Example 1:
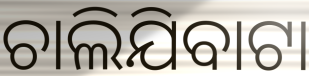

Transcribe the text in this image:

ଚାଲିଯିବାଟା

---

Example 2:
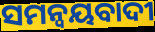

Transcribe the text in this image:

ସମନ୍ୱୟବାଦୀ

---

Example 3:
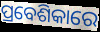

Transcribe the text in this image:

ପ୍ରବେଶିକାରେ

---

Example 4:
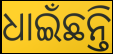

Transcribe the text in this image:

ଧାଇଁଛନ୍ତି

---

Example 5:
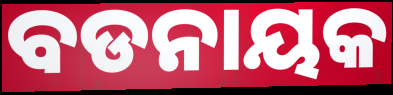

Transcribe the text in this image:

ବଡନାୟକ